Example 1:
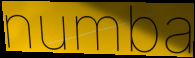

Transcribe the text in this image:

numba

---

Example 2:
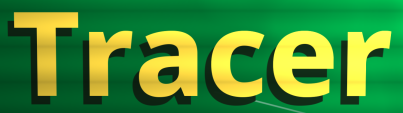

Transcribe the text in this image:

Tracer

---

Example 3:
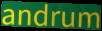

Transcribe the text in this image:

andrum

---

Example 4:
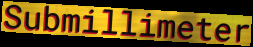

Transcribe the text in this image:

Submillimeter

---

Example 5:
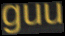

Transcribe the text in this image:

guu